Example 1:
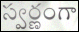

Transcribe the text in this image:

స్వర్ణంగా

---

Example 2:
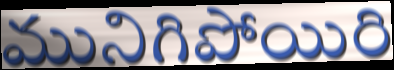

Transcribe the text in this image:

మునిగిపోయిరి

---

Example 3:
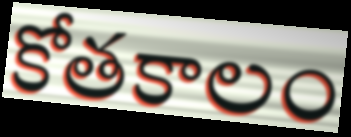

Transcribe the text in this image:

కోతకాలం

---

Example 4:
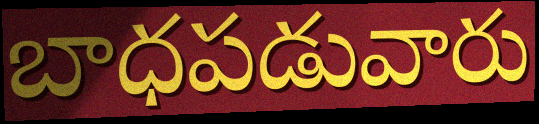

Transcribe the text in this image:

బాధపడువారు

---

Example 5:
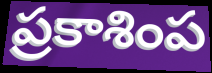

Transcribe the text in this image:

ప్రకాశింప